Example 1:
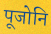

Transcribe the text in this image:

पूजोनि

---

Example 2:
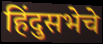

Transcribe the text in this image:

हिंदुसभेचे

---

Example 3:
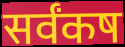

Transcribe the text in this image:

सर्वंकष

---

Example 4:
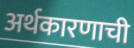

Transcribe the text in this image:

अर्थकारणाची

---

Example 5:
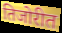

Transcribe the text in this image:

तिजोरीत